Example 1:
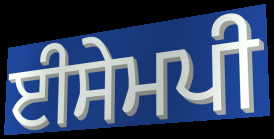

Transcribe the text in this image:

ਈਸੇਮਪੀ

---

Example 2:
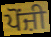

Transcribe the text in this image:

ਪੋਂਜ਼ੀ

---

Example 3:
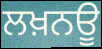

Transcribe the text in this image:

ਲਖ਼ਨਊ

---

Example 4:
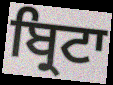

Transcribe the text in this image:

ਬ੍ਰਿਟਾ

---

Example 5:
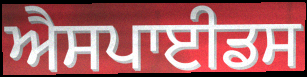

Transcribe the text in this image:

ਐਸਪਾਈਡਸ